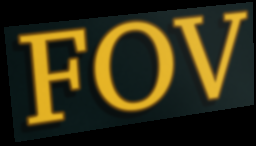
FOV